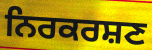
ਨਿਰਕਰਸ਼ਣ